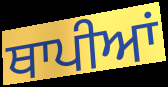
ਥਾਪੀਆਂ